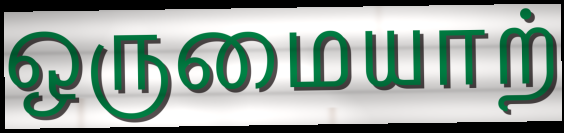
ஒருமையாற்